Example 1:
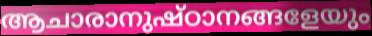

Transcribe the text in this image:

ആചാരാനുഷ്ഠാനങ്ങളേയും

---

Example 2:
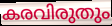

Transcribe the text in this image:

കരവിരുതും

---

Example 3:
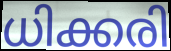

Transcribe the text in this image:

ധിക്കരി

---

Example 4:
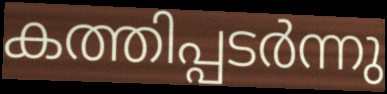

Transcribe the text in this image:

കത്തിപ്പടർന്നു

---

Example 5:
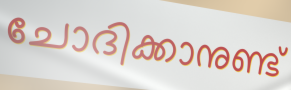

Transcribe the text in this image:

ചോദിക്കാനുണ്ട്